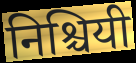
निश्चियी